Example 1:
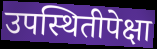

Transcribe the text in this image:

उपस्थितीपेक्षा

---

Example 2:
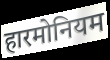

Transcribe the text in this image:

हारमोनियम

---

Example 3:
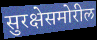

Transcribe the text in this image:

सुरक्षेसमोरील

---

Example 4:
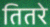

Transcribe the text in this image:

तितरे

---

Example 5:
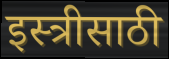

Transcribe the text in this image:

इस्त्रीसाठी